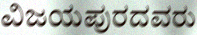
ವಿಜಯಪುರದವರು